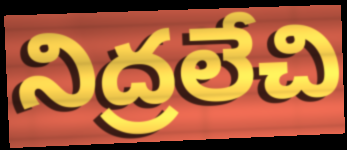
నిద్రలేచి